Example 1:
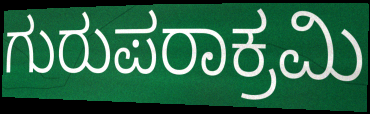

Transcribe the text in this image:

ಗುರುಪರಾಕ್ರಮಿ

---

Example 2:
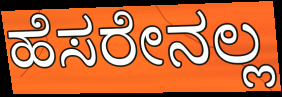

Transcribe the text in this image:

ಹೆಸರೇನಲ್ಲ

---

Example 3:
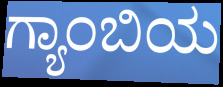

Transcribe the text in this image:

ಗ್ಯಾಂಬಿಯ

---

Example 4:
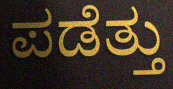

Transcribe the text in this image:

ಪಡೆತ್ತು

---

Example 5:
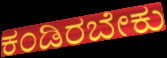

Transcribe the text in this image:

ಕಂಡಿರಬೇಕು